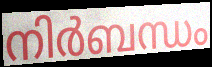
നിർബന്ധം